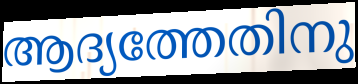
ആദ്യത്തേതിനു